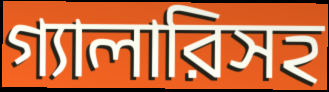
গ্যালারিসহ